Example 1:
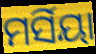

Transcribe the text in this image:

ମର୍ସିୟା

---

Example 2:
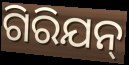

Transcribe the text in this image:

ଗିରିଯନ୍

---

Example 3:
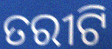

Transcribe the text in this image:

ତରୀଟି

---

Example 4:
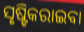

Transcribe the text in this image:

ସୃଷ୍ଟିକରାଇବା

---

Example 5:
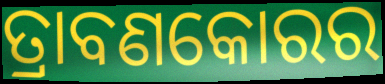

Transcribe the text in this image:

ତ୍ରାବଣକୋରର